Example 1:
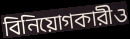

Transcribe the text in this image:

বিনিয়োগকারীও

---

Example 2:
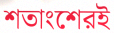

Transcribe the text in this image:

শতাংশেরই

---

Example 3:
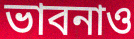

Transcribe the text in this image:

ভাবনাও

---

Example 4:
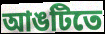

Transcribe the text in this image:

আঙটিতে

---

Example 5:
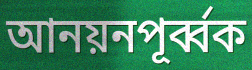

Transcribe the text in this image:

আনয়নপূর্ব্বক